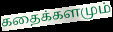
கதைக்களமும்